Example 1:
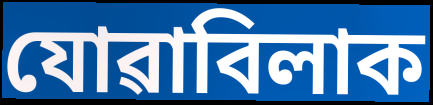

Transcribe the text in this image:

যোৱাবিলাক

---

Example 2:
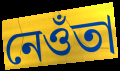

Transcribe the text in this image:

নেওঁতা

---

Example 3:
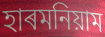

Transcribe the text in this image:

হাৰমনিয়াম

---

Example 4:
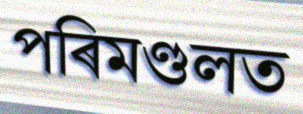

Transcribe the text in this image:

পৰিমণ্ডলত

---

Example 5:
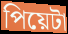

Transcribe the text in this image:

পিয়েটা